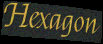
Hexagon